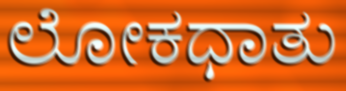
ಲೋಕಧಾತು